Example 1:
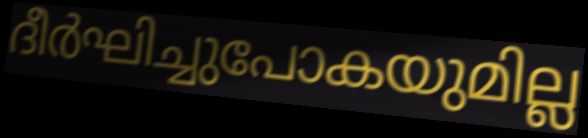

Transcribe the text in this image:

ദീർഘിച്ചുപോകയുമില്ല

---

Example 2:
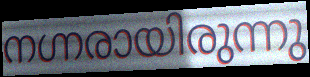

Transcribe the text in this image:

നഗ്നരായിരുന്നു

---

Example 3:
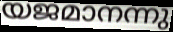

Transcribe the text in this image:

യജമാനന്നു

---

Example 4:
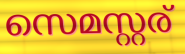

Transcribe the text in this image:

സെമസ്റ്റര്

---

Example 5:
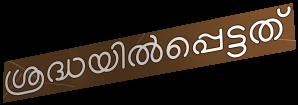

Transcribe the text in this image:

ശ്രദ്ധയിൽപ്പെട്ടത്